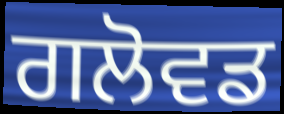
ਗਲੋਵਡ